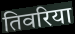
तिवरिया